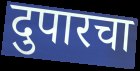
दुपारचा